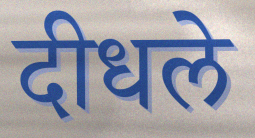
दीधले